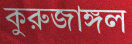
কুরুজাঙ্গল